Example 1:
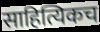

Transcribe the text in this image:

साहित्यिकच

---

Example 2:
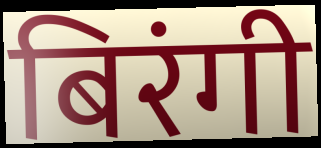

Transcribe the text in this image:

बिरंगी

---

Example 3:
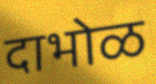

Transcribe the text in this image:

दाभोळ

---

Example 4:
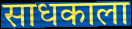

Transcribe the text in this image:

साधकाला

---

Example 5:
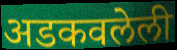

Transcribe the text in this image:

अडकवलेली